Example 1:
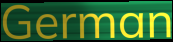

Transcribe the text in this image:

German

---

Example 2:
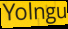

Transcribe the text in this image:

Yolngu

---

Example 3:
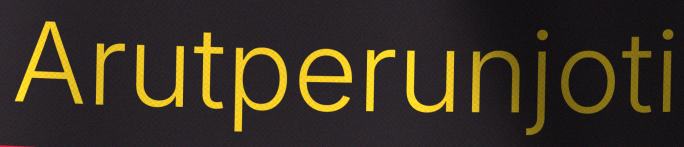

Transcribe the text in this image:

Arutperunjoti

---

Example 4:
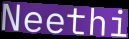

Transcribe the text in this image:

Neethi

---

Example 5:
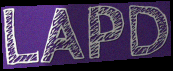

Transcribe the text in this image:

LAPD